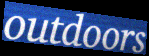
outdoors